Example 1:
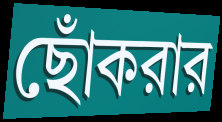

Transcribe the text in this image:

ছোঁকরার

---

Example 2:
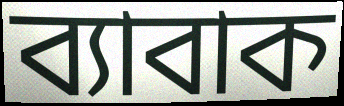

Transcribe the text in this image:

ব্যাবাক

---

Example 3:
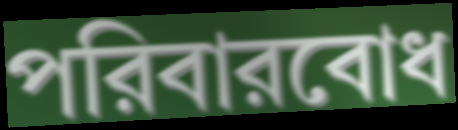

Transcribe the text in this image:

পরিবারবোধ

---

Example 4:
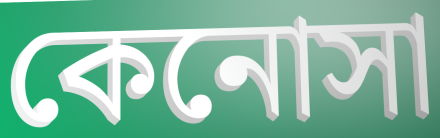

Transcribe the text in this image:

কেনোসা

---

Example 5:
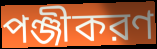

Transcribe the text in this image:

পঞ্জীকরণ